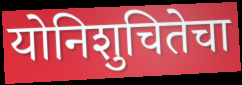
योनिशुचितेचा